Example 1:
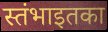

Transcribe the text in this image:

स्तंभाइतका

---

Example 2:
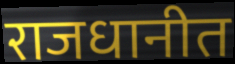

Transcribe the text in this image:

राजधानीत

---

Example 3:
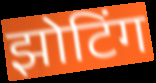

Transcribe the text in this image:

झोटिंग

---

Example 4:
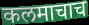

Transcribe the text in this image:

कलमाचाच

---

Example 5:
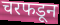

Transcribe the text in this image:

चरफडून